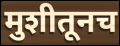
मुशीतूनच